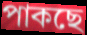
পাকছে